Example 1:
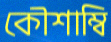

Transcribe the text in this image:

কৌশাম্বি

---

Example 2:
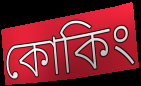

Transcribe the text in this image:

কোকিং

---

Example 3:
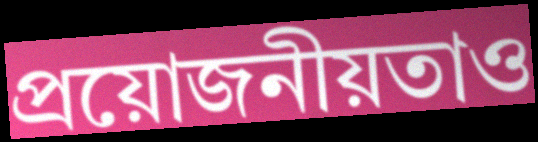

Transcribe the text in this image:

প্রয়োজনীয়তাও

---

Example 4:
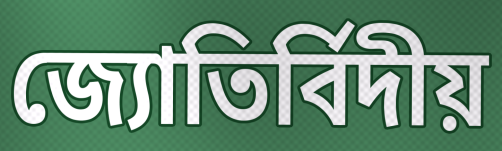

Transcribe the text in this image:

জ্যোতির্বিদীয়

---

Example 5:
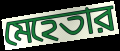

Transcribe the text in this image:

মেহেতার